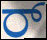
ರ್